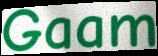
Gaam